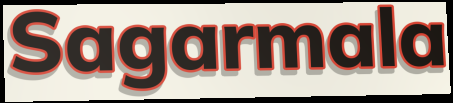
Sagarmala